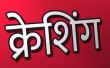
क्रेशिंग